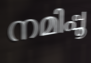
നമിപ്പൂ